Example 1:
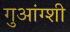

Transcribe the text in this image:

गुआंग्शी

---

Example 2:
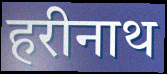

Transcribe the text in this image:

हरीनाथ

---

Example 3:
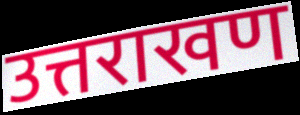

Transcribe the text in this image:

उत्तराखण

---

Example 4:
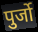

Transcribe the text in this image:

पुर्जो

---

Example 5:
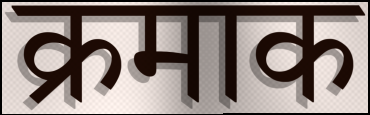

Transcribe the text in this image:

क्रमाक